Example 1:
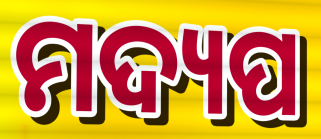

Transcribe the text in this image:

ମଦ୍ୟପ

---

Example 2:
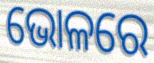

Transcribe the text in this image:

ଭୋଳରେ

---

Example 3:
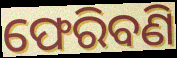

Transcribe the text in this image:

ଫେରିବଣି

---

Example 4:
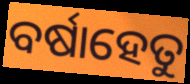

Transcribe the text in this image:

ବର୍ଷାହେତୁ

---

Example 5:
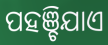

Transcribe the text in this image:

ପହଞ୍ଚିଯାଏ